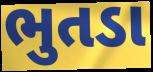
ભુતડા